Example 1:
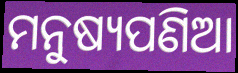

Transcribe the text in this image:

ମନୁଷ୍ୟପଣିଆ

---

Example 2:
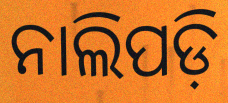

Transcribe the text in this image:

ନାଲିପଡ଼ି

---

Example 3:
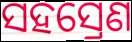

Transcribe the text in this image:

ସହସ୍ରେଣ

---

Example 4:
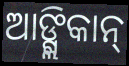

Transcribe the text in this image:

ଆଙ୍ଗ୍ଲିକାନ୍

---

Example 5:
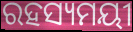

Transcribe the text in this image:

ରହସ୍ୟମୟୀ